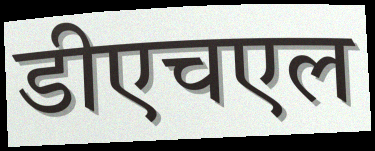
डीएचएल